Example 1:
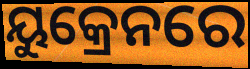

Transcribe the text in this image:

ୟୁକ୍ରେନରେ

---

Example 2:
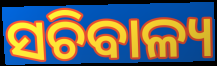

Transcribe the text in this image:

ସଚିବାଳ୍ୟ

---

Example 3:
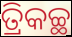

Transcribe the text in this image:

ତ୍ରିକଚ୍ଛ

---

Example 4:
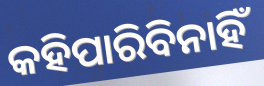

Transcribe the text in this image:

କହିପାରିବିନାହିଁ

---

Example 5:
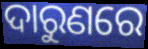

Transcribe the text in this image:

ଦାରୁଣରେ